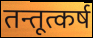
तन्तूत्कर्ष